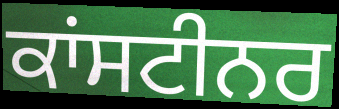
ਕਾਂਸਟੀਨਰ